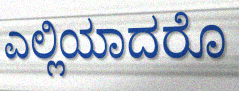
ಎಲ್ಲಿಯಾದರೊ